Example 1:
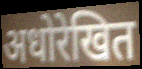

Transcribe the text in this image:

अधोरेखित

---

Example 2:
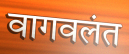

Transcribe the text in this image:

वागवलंत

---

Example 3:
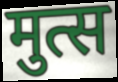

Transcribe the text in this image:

मुत्स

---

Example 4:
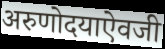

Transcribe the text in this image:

अरुणोदयाऐवजी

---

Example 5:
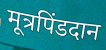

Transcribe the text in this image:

मूत्रपिंडदान